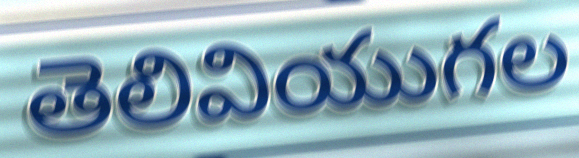
తెలివియుగల